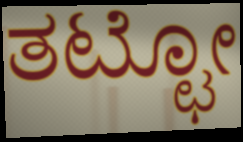
ತಟ್ಟೋ